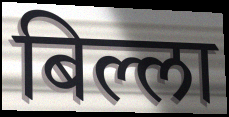
बिल्ला